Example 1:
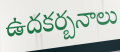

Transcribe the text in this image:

ఉదకర్బనాలు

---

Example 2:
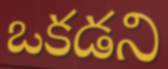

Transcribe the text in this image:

ఒకడని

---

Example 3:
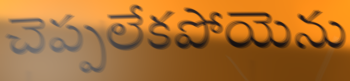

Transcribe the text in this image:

చెప్పలేకపోయెను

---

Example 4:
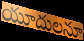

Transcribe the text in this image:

యూదులనూ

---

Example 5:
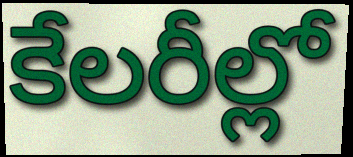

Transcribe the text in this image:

కేలరీల్లో